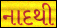
નાદથી